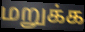
மறுக்க